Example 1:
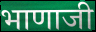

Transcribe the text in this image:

भाणाजी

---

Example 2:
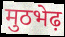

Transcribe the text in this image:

मुठभेढ़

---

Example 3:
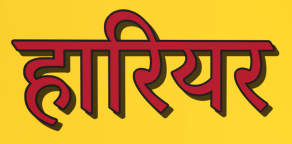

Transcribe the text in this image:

हारियर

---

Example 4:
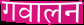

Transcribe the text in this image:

गवालन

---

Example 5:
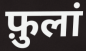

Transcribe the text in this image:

फ़ुलां